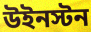
উইনস্টন